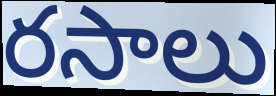
రసాలు